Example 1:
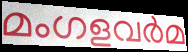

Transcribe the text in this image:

മംഗളവർമ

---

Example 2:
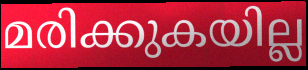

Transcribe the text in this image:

മരിക്കുകയില്ല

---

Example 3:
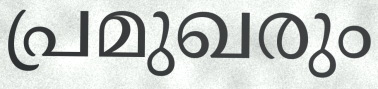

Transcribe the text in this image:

പ്രമുഖരും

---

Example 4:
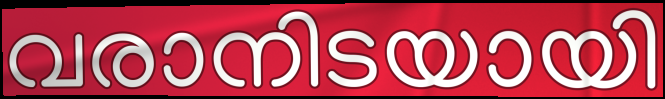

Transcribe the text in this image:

വരാനിടയായി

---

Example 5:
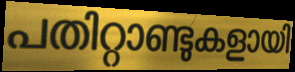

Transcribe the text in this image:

പതിറ്റാണ്ടുകളായി